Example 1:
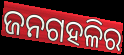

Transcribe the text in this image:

ଜନଗହଳିର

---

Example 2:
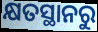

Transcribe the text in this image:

କ୍ଷତସ୍ଥାନରୁ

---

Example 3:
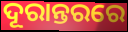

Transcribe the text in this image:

ଦୂରାନ୍ତରରେ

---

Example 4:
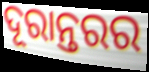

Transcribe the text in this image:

ଦୂରାନ୍ତରର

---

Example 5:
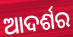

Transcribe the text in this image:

ଆଦର୍ଶର